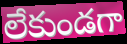
లేకుండగా